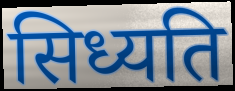
सिध्यति